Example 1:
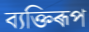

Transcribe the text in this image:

ব্যক্তিৰূপ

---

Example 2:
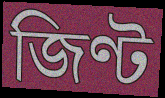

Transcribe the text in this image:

জিণ্ট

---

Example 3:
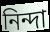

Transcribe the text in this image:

নিন্দা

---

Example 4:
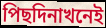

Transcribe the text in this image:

পিছদিনাখনেই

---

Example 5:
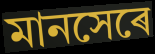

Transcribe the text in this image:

মানসেৰে